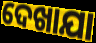
ଦେଖାଯା